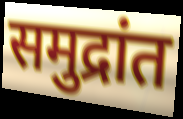
समुद्रांत